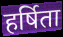
हर्षिता